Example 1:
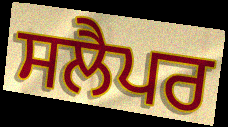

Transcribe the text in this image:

ਸਲੈਪਰ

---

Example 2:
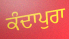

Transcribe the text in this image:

ਕੰਦਾਪੁਰਾ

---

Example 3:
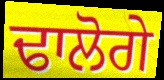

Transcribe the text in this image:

ਢਾਲੋਗੇ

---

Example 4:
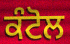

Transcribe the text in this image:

ਕੰਟੋਲ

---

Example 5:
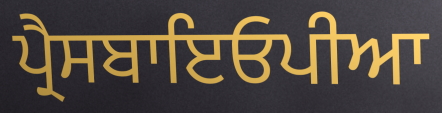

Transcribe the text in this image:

ਪ੍ਰੈਸਬਾਇਓਪੀਆ